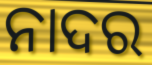
ନାଦର